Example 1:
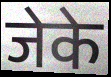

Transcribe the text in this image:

जेके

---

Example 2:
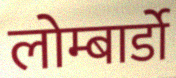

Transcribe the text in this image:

लोम्बार्डो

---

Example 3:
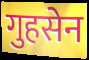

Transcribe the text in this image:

गुहसेन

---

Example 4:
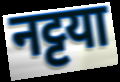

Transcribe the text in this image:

नट्टया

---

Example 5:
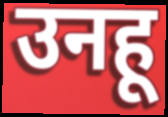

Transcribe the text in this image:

उनहू